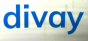
divay